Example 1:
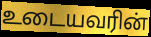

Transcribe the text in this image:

உடையவரின்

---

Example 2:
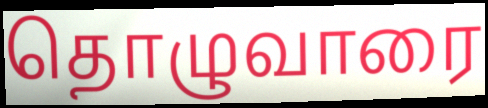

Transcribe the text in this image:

தொழுவாரை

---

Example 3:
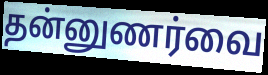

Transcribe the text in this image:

தன்னுணர்வை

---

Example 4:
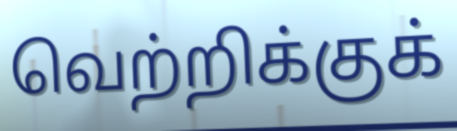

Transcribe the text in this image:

வெற்றிக்குக்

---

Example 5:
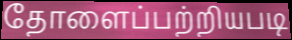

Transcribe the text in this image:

தோளைப்பற்றியபடி